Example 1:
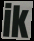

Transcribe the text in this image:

ik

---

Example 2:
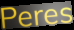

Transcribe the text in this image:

Peres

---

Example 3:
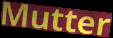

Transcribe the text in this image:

Mutter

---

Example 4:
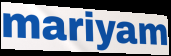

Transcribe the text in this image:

mariyam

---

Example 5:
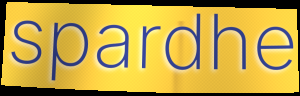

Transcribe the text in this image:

spardhe